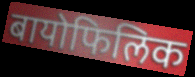
बायोफिलिक